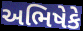
અભિષેકે